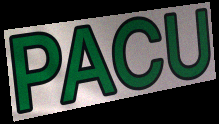
PACU